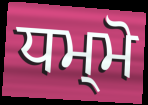
ਧਮ੍ਮੋ